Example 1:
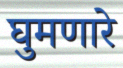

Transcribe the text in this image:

घुमणारे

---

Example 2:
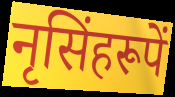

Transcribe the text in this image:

नृसिंहरूपें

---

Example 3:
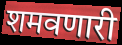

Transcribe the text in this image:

शमवणारी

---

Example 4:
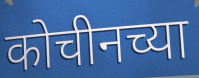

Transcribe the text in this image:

कोचीनच्या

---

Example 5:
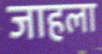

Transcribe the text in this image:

जाहला